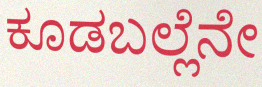
ಕೂಡಬಲ್ಲೆನೇ